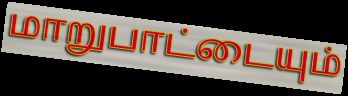
மாறுபாட்டையும்